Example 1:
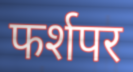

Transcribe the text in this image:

फर्शपर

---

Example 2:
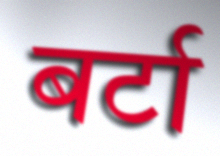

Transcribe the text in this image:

बर्टा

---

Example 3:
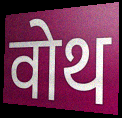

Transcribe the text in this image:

वोथ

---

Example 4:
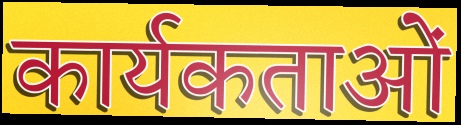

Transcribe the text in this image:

कार्यकताओं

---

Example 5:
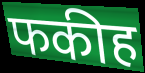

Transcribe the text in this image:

फकीह